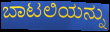
ಬಾಟಲಿಯನ್ನು